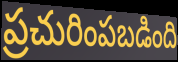
ప్రచురింపబడింది